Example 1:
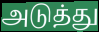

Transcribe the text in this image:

அடுத்து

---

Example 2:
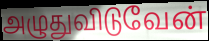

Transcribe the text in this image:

அழுதுவிடுவேன்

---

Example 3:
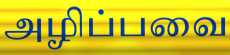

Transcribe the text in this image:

அழிப்பவை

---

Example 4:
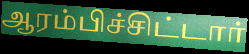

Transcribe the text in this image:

ஆரம்பிச்சிட்டார்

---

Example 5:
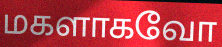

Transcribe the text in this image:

மகளாகவோ